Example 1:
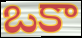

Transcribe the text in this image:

ఒకా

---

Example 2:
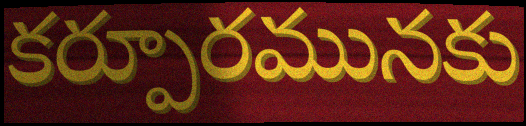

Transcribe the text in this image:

కర్పూరమునకు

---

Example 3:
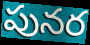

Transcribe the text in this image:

పునర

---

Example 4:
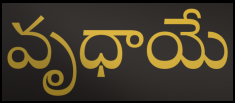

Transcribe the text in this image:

వృధాయే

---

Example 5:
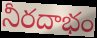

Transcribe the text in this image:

నీరదాభం